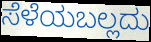
ಸೆಳೆಯಬಲ್ಲದು